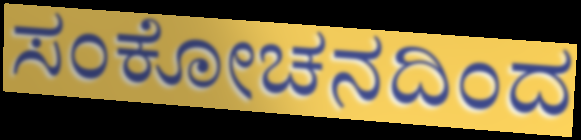
ಸಂಕೋಚನದಿಂದ